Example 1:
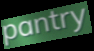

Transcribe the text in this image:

pantry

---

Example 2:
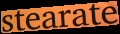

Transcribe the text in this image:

stearate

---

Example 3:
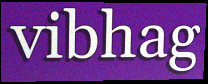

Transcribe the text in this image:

vibhag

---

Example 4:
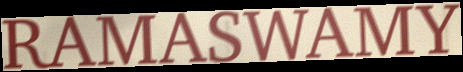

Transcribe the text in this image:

RAMASWAMY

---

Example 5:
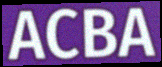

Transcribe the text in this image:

ACBA